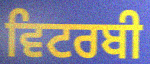
ਵਿਟਰਬੀ